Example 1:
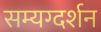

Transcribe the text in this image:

सम्यग्दर्शन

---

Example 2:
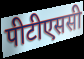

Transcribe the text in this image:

पीटीएससी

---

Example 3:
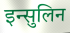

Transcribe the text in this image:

इन्सुलिन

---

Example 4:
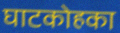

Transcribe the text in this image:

घाटकोहका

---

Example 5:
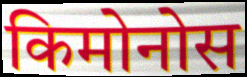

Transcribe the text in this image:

किमोनोस